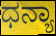
ಧನ್ಯಾ